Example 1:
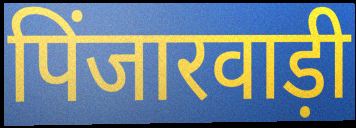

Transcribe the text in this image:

पिंजारवाड़ी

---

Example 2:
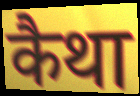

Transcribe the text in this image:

कैथा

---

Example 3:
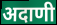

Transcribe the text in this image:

अदाणी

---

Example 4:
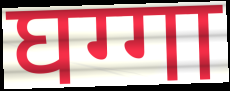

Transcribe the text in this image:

घग्गा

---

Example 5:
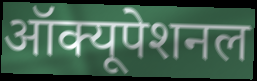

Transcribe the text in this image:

ऑक्यूपेशनल